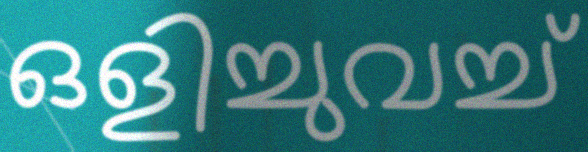
ഒളിച്ചുവച്ച്